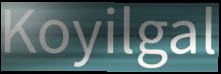
Koyilgal